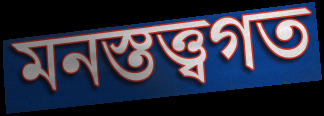
মনস্তত্ত্বগত